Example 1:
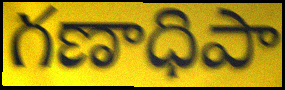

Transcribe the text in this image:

గణాధిపా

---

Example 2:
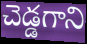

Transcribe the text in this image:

చెడ్డగాని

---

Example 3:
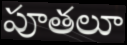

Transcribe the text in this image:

పూతలూ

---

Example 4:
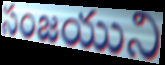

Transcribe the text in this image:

సంజయుని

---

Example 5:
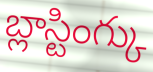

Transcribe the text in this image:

బ్లాస్టింగ్కు